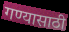
गण्यासाठी